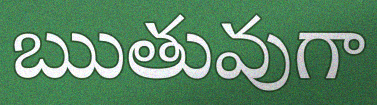
ఋతువుగా